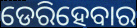
ଡେରିହେବାର